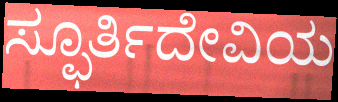
ಸ್ಫೂರ್ತಿದೇವಿಯ